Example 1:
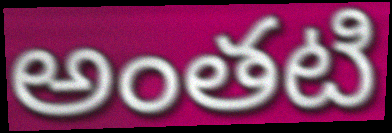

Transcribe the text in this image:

అంతటి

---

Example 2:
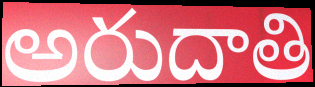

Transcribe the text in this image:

అరుదాతి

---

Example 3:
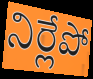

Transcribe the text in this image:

నిర్లేపో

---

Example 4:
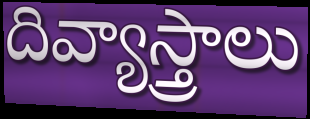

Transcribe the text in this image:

దివ్యాస్త్రాలు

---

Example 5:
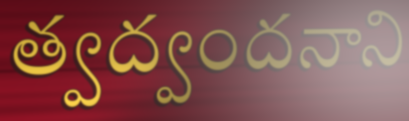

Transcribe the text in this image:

త్వద్వందనాని